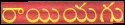
రాయియగు